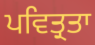
ਪਵਿਤ੍ਰਤਾ